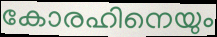
കോരഹിനെയും